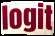
logit